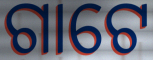
ଗାଟେ